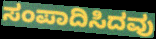
ಸಂಪಾದಿಸಿದವು